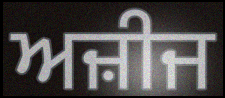
ਅਜ਼ੀਜ